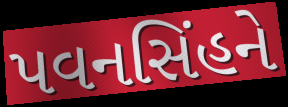
પવનસિંહને